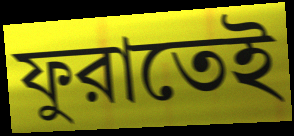
ফুরাতেই